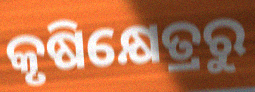
କୃଷିକ୍ଷେତ୍ରରୁ